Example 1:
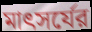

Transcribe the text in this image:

মাৎসর্যের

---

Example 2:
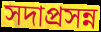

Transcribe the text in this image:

সদাপ্রসন্ন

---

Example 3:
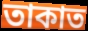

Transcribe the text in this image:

তাকাত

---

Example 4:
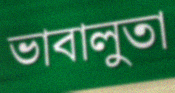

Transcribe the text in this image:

ভাবালুতা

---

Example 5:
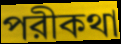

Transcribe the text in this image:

পরীকথা